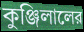
কুঞ্জিলালের